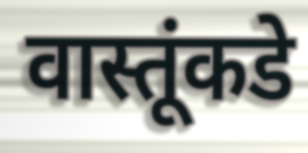
वास्तूंकडे